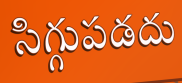
సిగ్గుపడదు